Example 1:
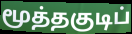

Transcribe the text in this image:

மூத்தகுடிப்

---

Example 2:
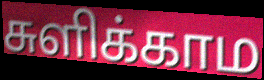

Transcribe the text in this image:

சுளிக்காம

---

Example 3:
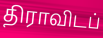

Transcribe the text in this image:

திராவிடப்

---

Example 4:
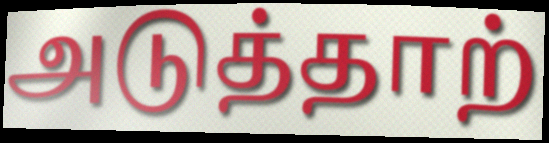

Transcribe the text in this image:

அடுத்தாற்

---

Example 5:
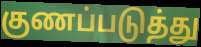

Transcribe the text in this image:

குணப்படுத்து